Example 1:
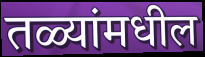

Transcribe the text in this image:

तळ्यांमधील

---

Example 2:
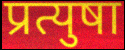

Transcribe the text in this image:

प्रत्युषा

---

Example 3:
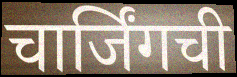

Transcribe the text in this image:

चार्जिंगची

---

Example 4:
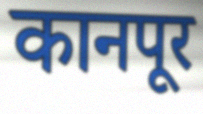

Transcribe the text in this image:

कानपूर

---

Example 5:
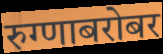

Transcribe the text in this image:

रुग्णाबरोबर